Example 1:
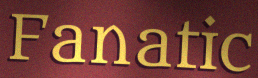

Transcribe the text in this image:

Fanatic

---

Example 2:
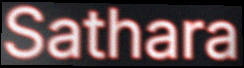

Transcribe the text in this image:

Sathara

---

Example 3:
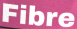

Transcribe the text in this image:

Fibre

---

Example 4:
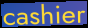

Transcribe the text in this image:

cashier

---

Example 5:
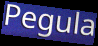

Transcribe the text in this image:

Pegula